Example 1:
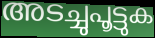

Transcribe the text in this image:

അടച്ചുപൂട്ടുക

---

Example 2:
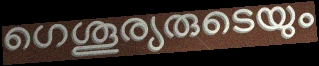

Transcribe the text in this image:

ഗെശൂര്യരുടെയും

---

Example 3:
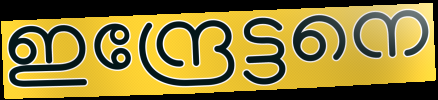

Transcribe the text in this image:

ഇന്ദ്രേട്ടനെ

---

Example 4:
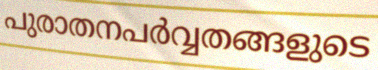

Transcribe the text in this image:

പുരാതനപർവ്വതങ്ങളുടെ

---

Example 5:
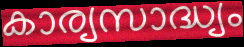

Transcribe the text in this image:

കാര്യസാദ്ധ്യം